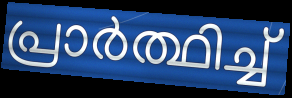
പ്രാർത്ഥിച്ച്